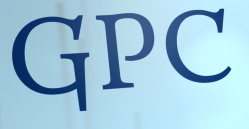
GPC